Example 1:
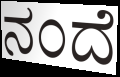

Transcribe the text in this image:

ನಂದೆ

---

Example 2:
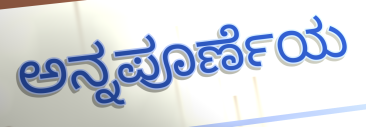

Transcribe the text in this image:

ಅನ್ನಪೂರ್ಣೆಯ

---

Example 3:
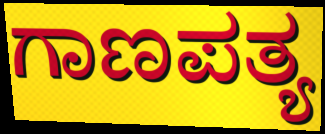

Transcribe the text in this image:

ಗಾಣಪತ್ಯ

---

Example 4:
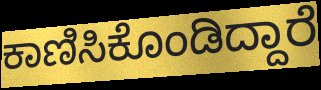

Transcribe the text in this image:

ಕಾಣಿಸಿಕೊಂಡಿದ್ದಾರೆ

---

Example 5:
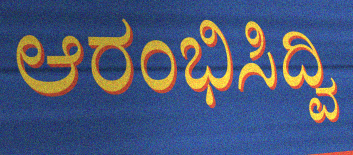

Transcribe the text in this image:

ಆರಂಭಿಸಿದ್ವಿ